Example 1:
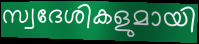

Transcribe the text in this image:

സ്വദേശികളുമായി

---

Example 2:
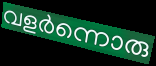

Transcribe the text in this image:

വളർന്നൊരു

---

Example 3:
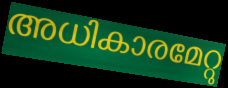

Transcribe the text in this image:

അധികാരമേറ്റു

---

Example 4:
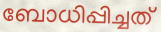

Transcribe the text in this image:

ബോധിപ്പിച്ചത്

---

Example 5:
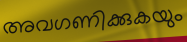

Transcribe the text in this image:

അവഗണിക്കുകയും